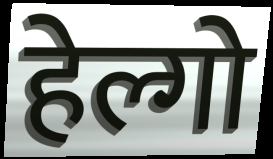
हेल्गो